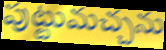
పుట్టుమచ్చను